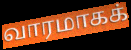
வாரமாகக்